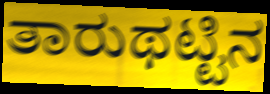
ತಾರುಥಟ್ಟಿನ